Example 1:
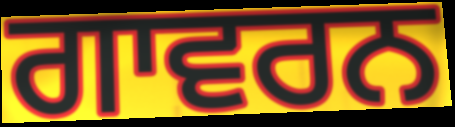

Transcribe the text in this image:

ਗਾਵਰਨ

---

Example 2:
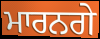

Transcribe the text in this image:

ਮਾਰਨਗੇ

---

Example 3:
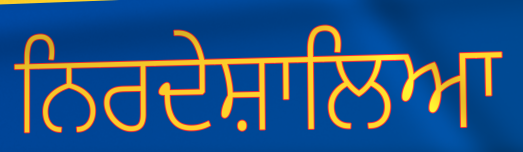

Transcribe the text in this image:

ਨਿਰਦੇਸ਼ਾਲਿਆ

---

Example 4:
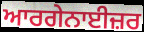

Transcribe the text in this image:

ਆਰਗੇਨਾਈਜ਼ਰ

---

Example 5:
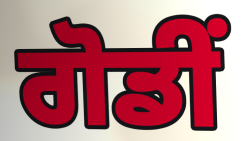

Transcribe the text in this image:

ਗੋਡੀਂ